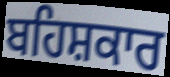
ਬਹਿਸ਼ਕਾਰ